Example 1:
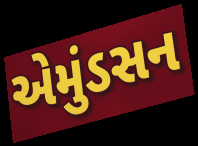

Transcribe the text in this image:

એમુંડસન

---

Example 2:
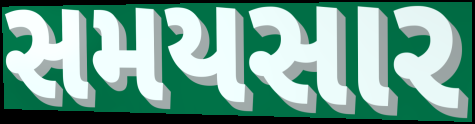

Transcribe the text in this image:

સમયસાર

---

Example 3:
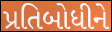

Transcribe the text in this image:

પ્રતિબોધીને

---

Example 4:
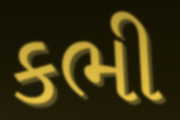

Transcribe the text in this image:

કભી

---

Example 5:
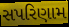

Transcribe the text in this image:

સપરિણામ